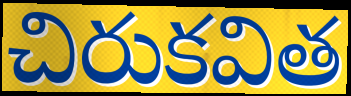
చిరుకవిత